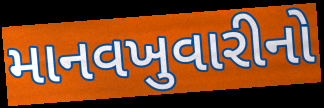
માનવખુવારીનો